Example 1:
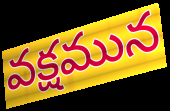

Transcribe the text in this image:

వక్షమున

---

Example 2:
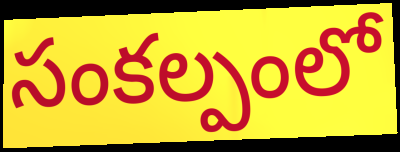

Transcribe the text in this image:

సంకల్పంలో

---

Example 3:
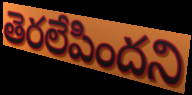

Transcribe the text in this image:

తెరలేపిందని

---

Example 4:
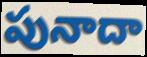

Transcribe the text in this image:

పునాదా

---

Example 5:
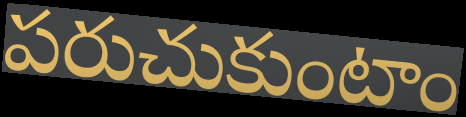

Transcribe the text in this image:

పరుచుకుంటాం